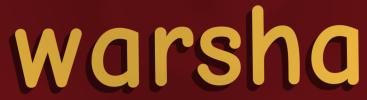
warsha